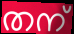
തന്